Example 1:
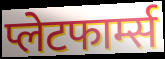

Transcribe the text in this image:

प्लेटफार्म्स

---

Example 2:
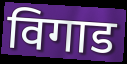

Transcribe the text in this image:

विगाड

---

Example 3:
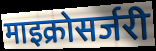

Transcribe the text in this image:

माइक्रोसर्जरी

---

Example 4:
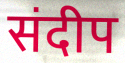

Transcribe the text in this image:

संदीप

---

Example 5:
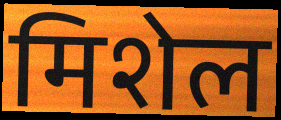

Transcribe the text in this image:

मिशेल